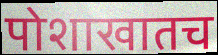
पोशाखातच